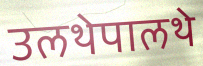
उलथेपालथे